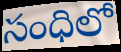
సంధిలో